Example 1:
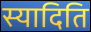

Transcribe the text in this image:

स्यादिति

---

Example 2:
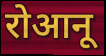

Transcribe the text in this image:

रोआनू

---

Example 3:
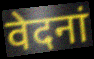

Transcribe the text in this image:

वेदनां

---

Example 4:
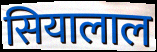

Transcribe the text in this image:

सियालाल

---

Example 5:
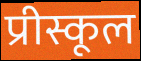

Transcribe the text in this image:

प्रीस्कूल